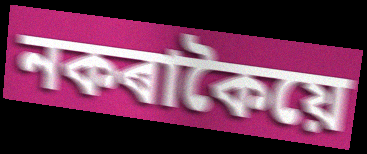
নকৰাকৈয়ে